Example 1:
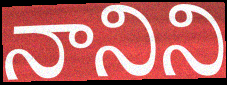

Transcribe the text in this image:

నానిని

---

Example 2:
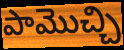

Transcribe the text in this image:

పామొచ్చి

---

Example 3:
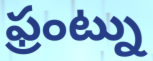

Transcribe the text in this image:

ఫ్రంట్ను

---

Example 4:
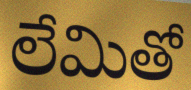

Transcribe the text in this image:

లేమితో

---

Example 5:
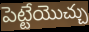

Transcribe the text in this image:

పెట్టేయొచ్చు